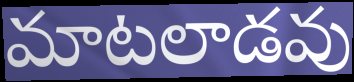
మాటలాడవు